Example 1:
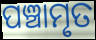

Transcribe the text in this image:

ପଞ୍ଚାମୃତ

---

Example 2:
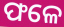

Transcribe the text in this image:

ଫଳେ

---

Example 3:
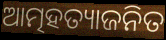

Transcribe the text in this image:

ଆତ୍ମହତ୍ୟାଜନିତ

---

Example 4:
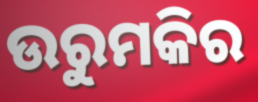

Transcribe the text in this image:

ଉରୁମକିର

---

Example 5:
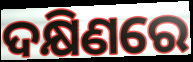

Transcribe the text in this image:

ଦକ୍ଷିଣରେ